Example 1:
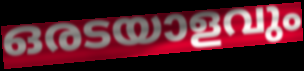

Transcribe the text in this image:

ഒരടയാളവും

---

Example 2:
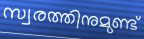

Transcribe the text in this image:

സ്വരത്തിനുമുണ്ട്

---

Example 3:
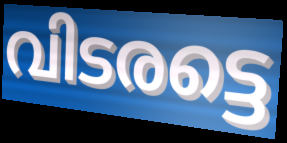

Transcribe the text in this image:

വിടരട്ടെ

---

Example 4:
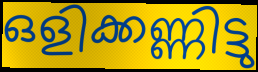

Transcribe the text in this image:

ഒളിക്കണ്ണിട്ടു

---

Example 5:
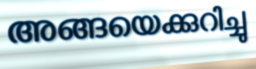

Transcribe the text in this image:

അങ്ങയെക്കുറിച്ചു